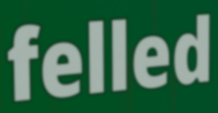
felled